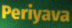
Periyava